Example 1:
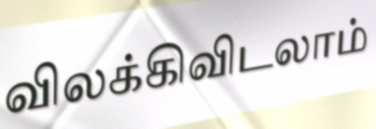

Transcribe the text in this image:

விலக்கிவிடலாம்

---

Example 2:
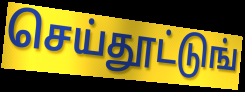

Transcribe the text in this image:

செய்தூட்டுங்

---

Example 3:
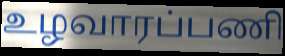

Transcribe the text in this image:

உழவாரப்பணி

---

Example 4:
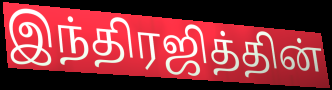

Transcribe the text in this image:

இந்திரஜித்தின்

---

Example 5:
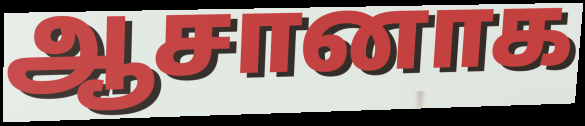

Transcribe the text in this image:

ஆசானாக